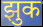
झुक